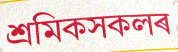
শ্ৰমিকসকলৰ